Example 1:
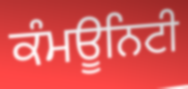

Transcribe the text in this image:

ਕੰਮਊਨਿਟੀ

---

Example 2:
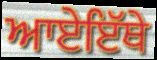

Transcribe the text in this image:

ਆਏਇੱਥੇ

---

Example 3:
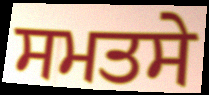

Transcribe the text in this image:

ਸਮਤਸੇ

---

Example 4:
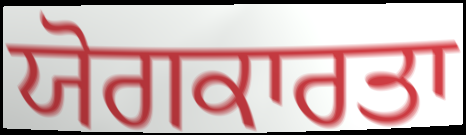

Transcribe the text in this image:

ਯੋਗਕਾਰਤਾ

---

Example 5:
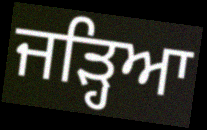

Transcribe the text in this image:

ਜੜ੍ਹਿਆ